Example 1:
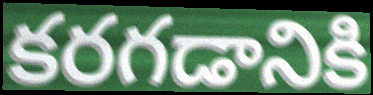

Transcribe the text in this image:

కరగడానికి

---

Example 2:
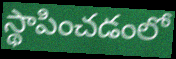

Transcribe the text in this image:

స్థాపించడంలో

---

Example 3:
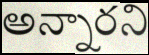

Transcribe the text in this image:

అన్నారని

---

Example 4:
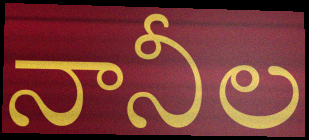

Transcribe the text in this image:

నానీల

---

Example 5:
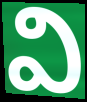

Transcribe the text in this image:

వి